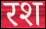
रश